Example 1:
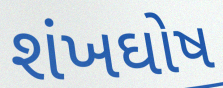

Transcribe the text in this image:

શંખઘોષ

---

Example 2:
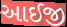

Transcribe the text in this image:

આઈજી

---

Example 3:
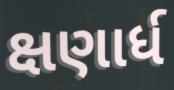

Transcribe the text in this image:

ક્ષણાર્ધ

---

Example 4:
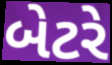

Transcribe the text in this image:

બેટરે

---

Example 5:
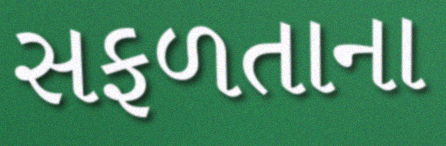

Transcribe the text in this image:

સફળતાના